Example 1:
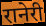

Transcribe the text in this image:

रानेरी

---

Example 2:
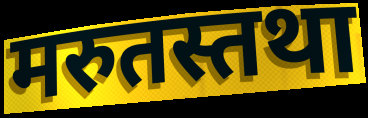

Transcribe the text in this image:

मरुतस्तथा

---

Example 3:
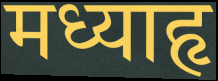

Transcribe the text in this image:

मध्याहृ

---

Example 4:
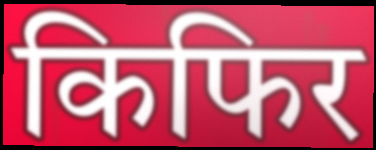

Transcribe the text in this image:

किफिर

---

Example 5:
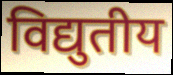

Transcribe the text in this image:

विद्युतीय